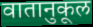
वातानुकूल